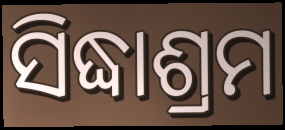
ସିଦ୍ଧାଶ୍ରମ